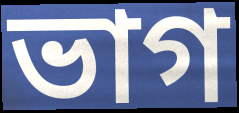
ভাগ